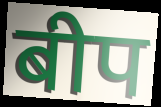
बीप